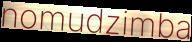
nomudzimba